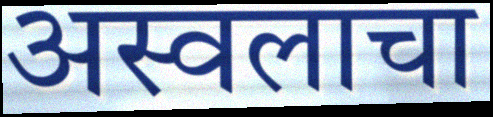
अस्वलाचा